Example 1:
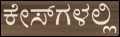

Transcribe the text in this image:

ಕೇಸ್‌ಗಳಲ್ಲಿ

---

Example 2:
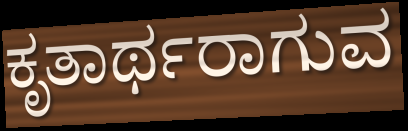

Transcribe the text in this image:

ಕೃತಾರ್ಥರಾಗುವ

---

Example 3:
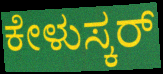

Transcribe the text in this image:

ಕೇಳುಸ್ಕರ್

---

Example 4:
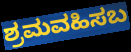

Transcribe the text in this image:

ಶ್ರಮವಹಿಸಬ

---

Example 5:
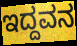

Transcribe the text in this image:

ಇದ್ದವನ